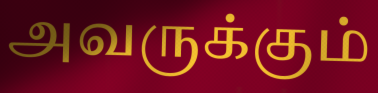
அவருக்கும்